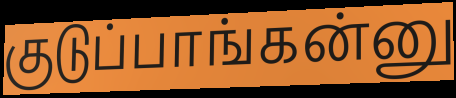
குடுப்பாங்கன்னு